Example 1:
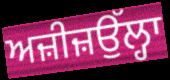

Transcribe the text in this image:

ਅਜ਼ੀਜ਼ਉੱਲ੍ਹਾ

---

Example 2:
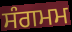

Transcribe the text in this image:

ਸੰਗਮਮ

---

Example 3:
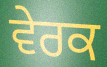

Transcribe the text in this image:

ਵੇਰਕ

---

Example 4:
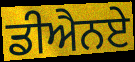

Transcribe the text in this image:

ਡੀਐਨਏ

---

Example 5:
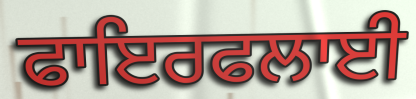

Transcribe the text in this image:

ਫਾਇਰਫਲਾਈ